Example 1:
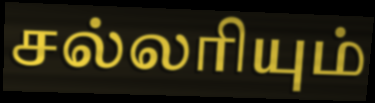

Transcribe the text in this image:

சல்லரியும்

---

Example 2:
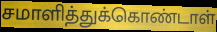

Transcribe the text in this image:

சமாளித்துக்கொண்டாள்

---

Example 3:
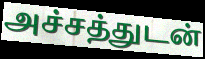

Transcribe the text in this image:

அச்சத்துடன்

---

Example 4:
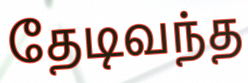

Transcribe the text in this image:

தேடிவந்த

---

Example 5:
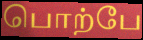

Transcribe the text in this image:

பொற்பே